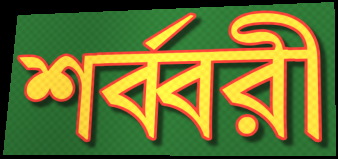
শর্ব্বরী